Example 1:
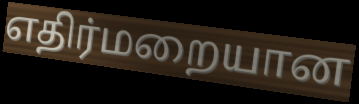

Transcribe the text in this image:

எதிர்மறையான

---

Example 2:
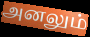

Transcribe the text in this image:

அனலும்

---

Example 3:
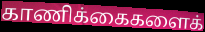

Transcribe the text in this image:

காணிக்கைகளைக்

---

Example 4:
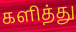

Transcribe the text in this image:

களித்து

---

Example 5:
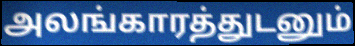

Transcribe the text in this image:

அலங்காரத்துடனும்